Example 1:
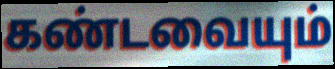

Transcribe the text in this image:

கண்டவையும்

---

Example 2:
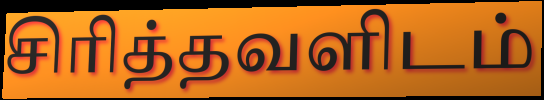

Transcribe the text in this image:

சிரித்தவளிடம்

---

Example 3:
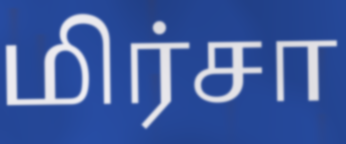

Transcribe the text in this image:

மிர்சா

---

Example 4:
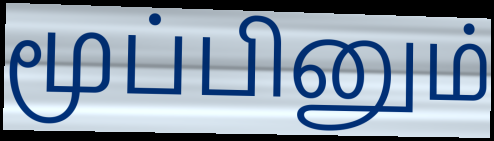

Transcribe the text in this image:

மூப்பினும்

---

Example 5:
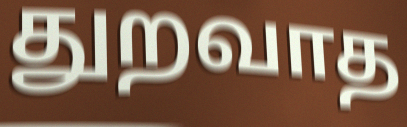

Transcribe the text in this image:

துறவாத